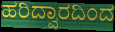
ಹರಿದ್ವಾರದಿಂದ